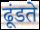
ढूंडते